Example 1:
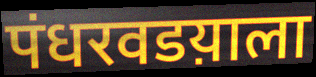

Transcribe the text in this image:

पंधरवडय़ाला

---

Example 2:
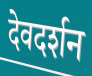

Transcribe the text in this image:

देवदर्शन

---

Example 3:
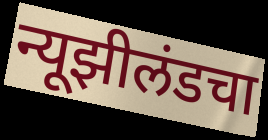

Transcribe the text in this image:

न्यूझीलंडचा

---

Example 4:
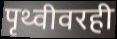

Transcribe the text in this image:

पृथ्वीवरही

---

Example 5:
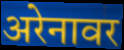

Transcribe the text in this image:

अरेनावर